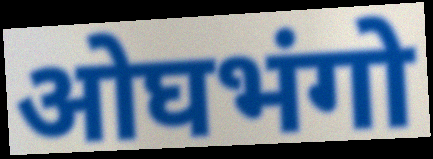
ओघभंगो